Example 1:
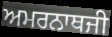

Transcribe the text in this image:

ਅਮਰਨਾਥਜੀ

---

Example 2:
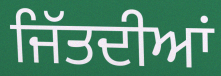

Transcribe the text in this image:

ਜਿੱਤਦੀਆਂ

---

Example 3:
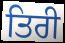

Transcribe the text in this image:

ਤਿਰੀ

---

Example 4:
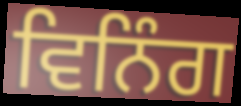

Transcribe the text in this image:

ਵਿਨਿੰਗ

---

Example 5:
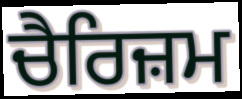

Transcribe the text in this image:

ਚੈਰਿਜ਼ਮ